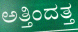
ಅತ್ತಿಂದತ್ತ